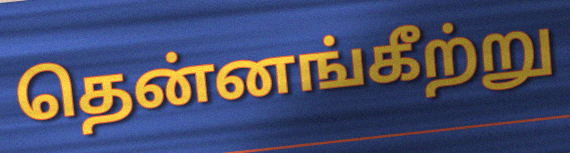
தென்னங்கீற்று